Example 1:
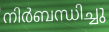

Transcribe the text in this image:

നിർബന്ധിച്ചു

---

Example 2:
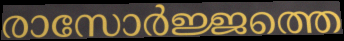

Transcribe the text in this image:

രാസോർജ്ജത്തെ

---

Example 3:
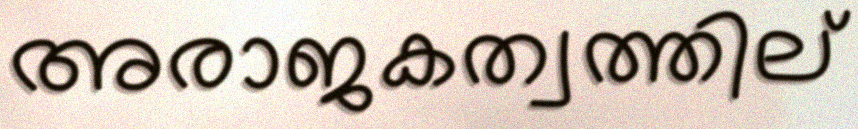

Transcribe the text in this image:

അരാജകത്വത്തില്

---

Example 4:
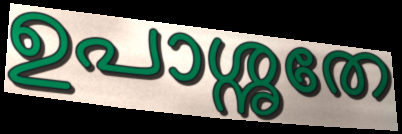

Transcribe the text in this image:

ഉപാശ്നുതേ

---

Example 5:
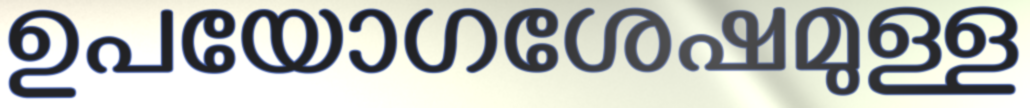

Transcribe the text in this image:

ഉപയോഗശേഷമുള്ള